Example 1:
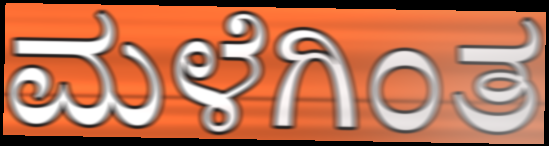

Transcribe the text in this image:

ಮಳೆಗಿಂತ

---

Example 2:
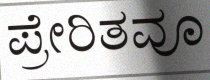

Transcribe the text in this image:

ಪ್ರೇರಿತವೂ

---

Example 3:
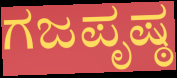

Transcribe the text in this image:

ಗಜಪೃಷ್ಠ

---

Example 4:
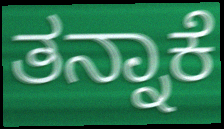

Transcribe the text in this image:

ತನ್ನಾಕೆ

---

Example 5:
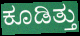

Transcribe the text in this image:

ಕೂಡಿತ್ತು